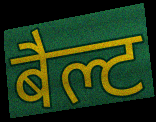
बैल्ट